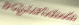
సారమైనదానియందు